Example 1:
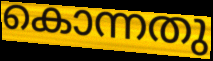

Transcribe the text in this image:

കൊന്നതു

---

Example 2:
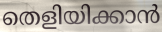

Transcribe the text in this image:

തെളിയിക്കാൻ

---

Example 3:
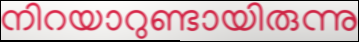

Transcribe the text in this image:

നിറയാറുണ്ടായിരുന്നു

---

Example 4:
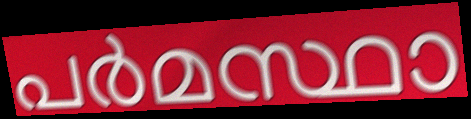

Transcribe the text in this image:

പർമസ്ഥാ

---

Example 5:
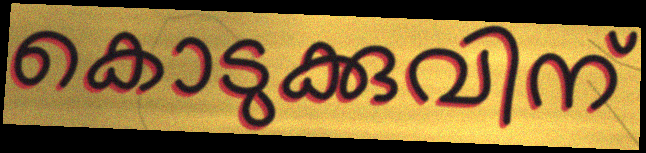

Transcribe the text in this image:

കൊടുക്കുവിന്